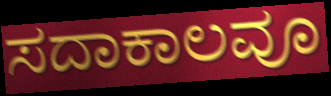
ಸದಾಕಾಲವೂ